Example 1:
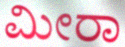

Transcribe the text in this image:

ಮೀರಾ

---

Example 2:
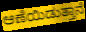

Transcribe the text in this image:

ಆಣೆಯಿಡುತ್ತಾನೆ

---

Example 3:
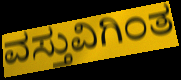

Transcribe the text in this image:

ವಸ್ತುವಿಗಿಂತ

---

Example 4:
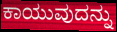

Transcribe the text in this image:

ಕಾಯುವುದನ್ನು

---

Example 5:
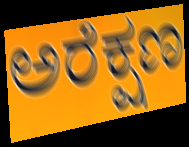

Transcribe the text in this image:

ಅರೆಕ್ಷಣ